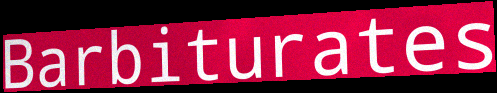
Barbiturates